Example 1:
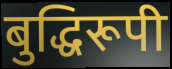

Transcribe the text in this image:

बुद्धिरूपी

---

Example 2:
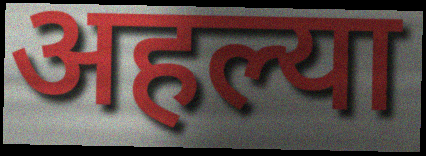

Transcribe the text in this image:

अहल्या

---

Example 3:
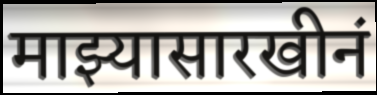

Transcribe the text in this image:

माझ्यासारखीनं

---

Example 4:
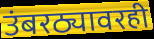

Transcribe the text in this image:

उंबरठ्यावरही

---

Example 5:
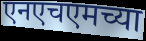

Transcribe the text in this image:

एनएचएमच्या